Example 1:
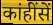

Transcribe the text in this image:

कांहींसें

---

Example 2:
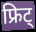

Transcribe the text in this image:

फ्रिट्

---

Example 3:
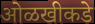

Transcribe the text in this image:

ओळखीकडे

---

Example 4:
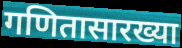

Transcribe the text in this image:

गणितासारख्या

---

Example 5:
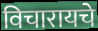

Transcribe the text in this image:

विचारायचे